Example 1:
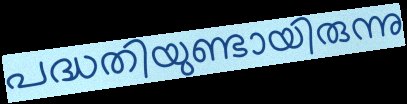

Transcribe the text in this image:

പദ്ധതിയുണ്ടായിരുന്നു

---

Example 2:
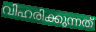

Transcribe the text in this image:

വിഹരിക്കുന്നത്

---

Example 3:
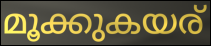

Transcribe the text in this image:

മൂക്കുകയര്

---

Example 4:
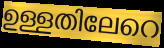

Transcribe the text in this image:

ഉള്ളതിലേറെ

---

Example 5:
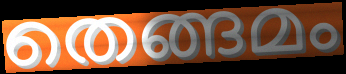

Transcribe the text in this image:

തെങ്ങമം